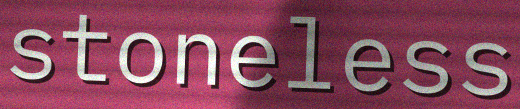
stoneless